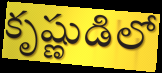
కృష్ణుడిలో